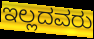
ಇಲ್ಲದವರು